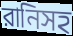
রানিসহ